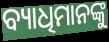
ବ୍ୟାଧିମାନଙ୍କୁ